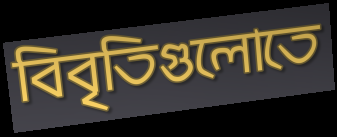
বিবৃতিগুলোতে